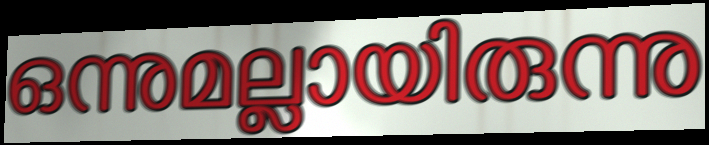
ഒന്നുമല്ലായിരുന്നു